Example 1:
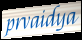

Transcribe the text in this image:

prvaidya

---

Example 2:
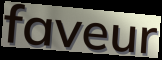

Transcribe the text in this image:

faveur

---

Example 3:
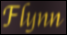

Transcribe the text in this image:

Flynn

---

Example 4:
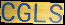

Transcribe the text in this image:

CGLS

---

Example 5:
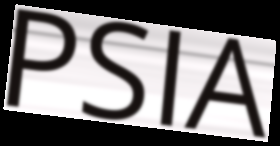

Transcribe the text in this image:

PSIA